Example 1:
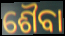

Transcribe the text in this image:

ଶୈବା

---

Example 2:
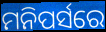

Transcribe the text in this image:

ମନିପର୍ସରେ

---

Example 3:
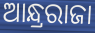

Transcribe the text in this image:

ଆନ୍ଧ୍ରରାଜା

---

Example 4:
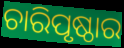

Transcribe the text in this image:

ଚାରିପୃଷ୍ଠାର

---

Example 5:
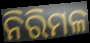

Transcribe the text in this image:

ନିରିମଳ